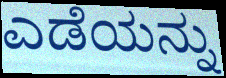
ಎಡೆಯನ್ನು